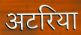
अटरिया